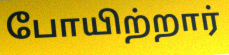
போயிற்றார்